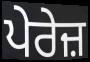
ਪੇਰੇਜ਼